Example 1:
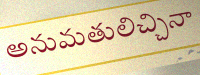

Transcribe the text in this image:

అనుమతులిచ్చినా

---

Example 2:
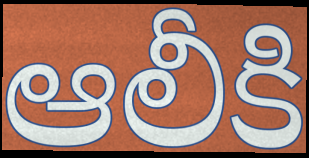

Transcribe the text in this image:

ఆలీకి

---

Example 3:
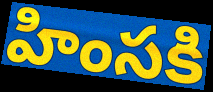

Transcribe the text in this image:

హింసకి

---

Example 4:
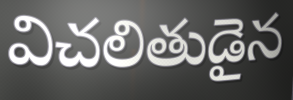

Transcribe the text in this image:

విచలితుడైన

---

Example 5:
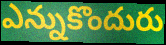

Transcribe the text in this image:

ఎన్నుకొందురు